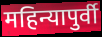
महिन्यापुर्वी